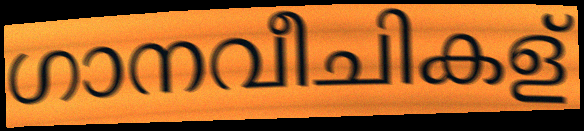
ഗാനവീചികള്